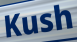
Kush